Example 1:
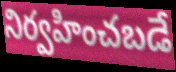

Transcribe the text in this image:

నిర్వహించబడే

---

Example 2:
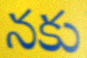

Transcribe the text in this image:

నకు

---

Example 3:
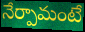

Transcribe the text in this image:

నేర్పామంటే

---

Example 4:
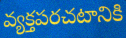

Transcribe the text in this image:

వ్యక్తపరచటానికి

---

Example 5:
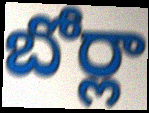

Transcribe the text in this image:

బోర్లా